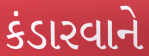
કંડારવાને